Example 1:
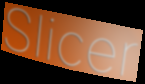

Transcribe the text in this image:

Slicer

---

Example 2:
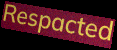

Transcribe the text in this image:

Respacted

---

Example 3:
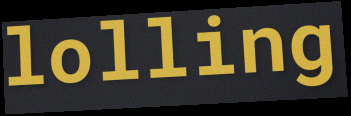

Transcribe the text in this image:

lolling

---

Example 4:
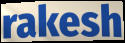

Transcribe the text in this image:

rakesh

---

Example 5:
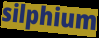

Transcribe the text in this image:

silphium